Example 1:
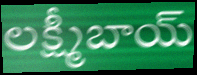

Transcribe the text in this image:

లక్ష్మీబాయ్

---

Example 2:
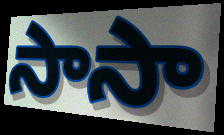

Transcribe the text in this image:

సాసా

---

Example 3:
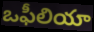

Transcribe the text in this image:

ఒఫీలియా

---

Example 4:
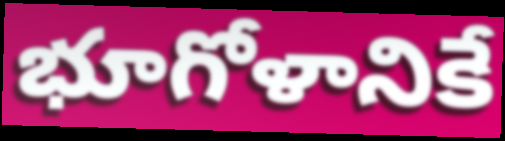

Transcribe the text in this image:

భూగోళానికే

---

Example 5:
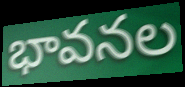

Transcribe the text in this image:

భావనల